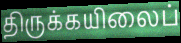
திருக்கயிலைப்